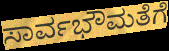
ಸಾರ್ವಭೌಮತೆಗೆ